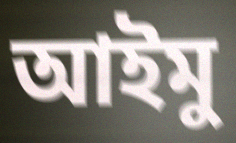
আইমু